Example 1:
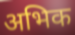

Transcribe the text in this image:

अभिक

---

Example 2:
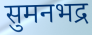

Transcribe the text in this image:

सुमनभद्र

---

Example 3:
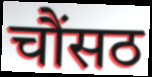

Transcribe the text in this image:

चौंसठ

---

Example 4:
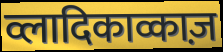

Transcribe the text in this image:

व्लादिकाव्काज़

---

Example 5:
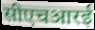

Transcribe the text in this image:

सीएचआरई